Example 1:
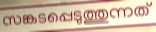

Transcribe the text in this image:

സങ്കടപ്പെടുത്തുന്നത്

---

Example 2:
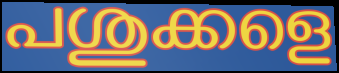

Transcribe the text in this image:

പശുക്കളെ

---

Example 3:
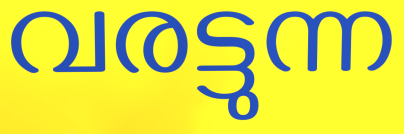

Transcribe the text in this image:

വരട്ടുന്ന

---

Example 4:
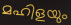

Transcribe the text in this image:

മഹിളയും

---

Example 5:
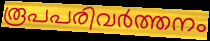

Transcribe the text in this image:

രൂപപരിവർത്തനം